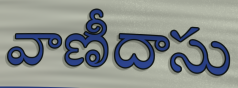
వాణీదాసు